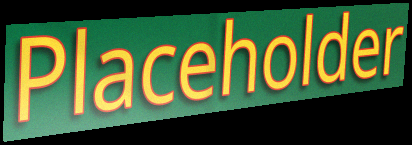
Placeholder